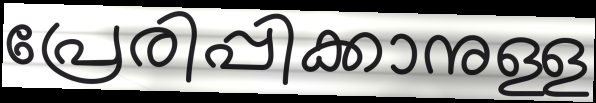
പ്രേരിപ്പിക്കാനുള്ള